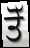
ਤੋੱ